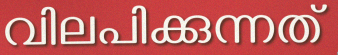
വിലപിക്കുന്നത്